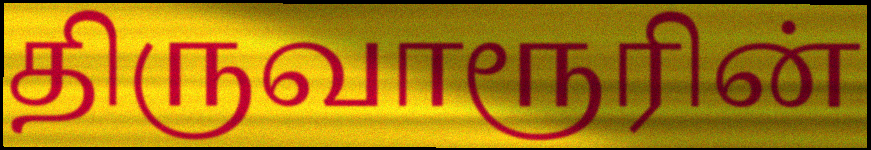
திருவாரூரின்